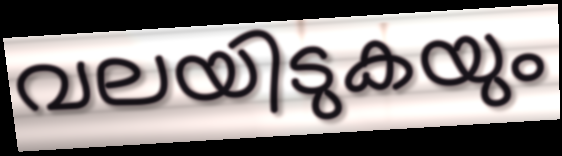
വലയിടുകയും